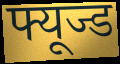
फ्यूज्ड